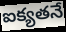
ఐక్యతనే